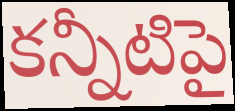
కన్నీటిపై